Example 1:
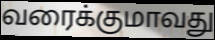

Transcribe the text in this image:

வரைக்குமாவது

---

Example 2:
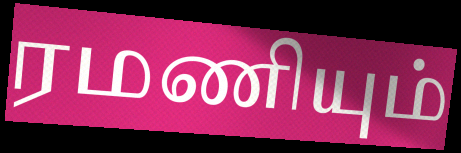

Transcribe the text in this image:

ரமணியும்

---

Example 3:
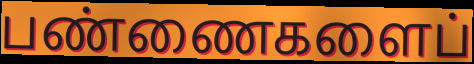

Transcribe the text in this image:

பண்ணைகளைப்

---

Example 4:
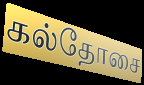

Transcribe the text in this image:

கல்தோசை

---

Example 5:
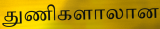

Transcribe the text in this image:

துணிகளாலான